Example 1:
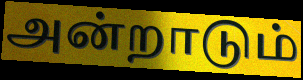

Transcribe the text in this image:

அன்றாடும்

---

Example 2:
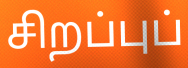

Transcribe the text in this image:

சிறப்புப்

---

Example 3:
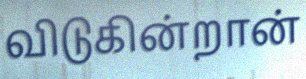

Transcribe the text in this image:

விடுகின்றான்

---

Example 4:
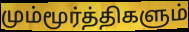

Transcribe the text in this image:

மும்மூர்த்திகளும்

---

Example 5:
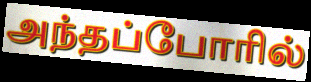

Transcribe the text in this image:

அந்தப்போரில்